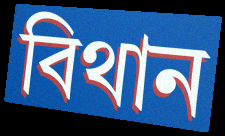
বিথান